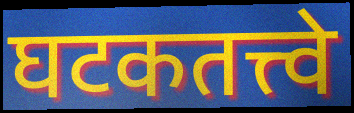
घटकतत्त्वे